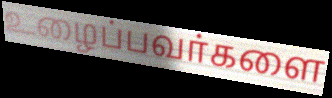
உழைப்பவர்களை